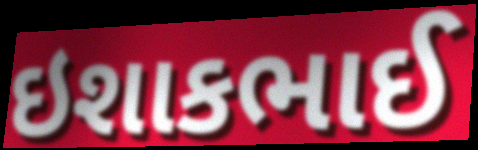
ઇશાકભાઈ